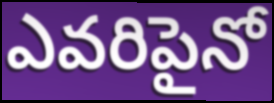
ఎవరిపైనో